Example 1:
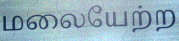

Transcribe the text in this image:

மலையேற்ற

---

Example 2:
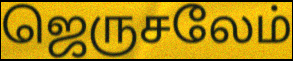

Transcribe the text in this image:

ஜெருசலேம்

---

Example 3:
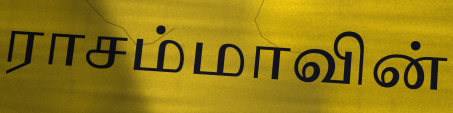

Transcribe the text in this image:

ராசம்மாவின்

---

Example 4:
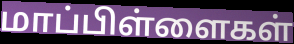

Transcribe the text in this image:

மாப்பிள்ளைகள்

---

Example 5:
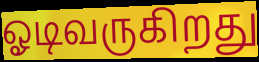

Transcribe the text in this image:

ஓடிவருகிறது